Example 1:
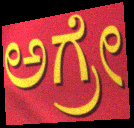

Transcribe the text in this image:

ಅಗ್ರೇ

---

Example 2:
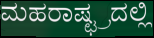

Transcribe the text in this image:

ಮಹರಾಷ್ಟ್ರದಲ್ಲಿ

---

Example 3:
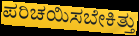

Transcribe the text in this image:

ಪರಿಚಯಿಸಬೇಕಿತ್ತು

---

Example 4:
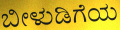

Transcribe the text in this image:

ಬೀಳುಡಿಗೆಯ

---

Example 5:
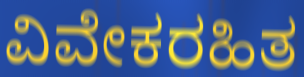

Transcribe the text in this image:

ವಿವೇಕರಹಿತ